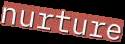
nurture